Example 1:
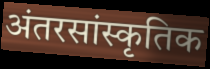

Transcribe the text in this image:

अंतरसांस्कृतिक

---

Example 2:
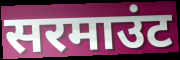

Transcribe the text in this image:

सरमाउंट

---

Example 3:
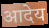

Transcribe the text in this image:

आदेय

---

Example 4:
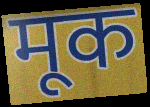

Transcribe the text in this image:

मूक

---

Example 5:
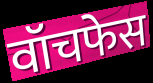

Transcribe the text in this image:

वॉचफेस